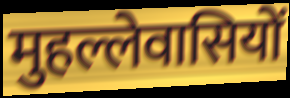
मुहल्लेवासियों